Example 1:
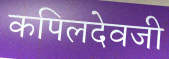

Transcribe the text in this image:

कपिलदेवजी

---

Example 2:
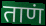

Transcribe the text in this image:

ताणं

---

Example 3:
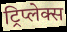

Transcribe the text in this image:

ट्रिप्लेक्स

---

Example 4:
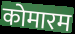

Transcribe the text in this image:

कोमारम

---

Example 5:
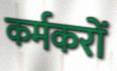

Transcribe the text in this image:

कर्मकरों